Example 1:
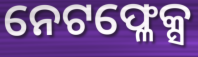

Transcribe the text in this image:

ନେଟଫ୍ଳେକ୍ସ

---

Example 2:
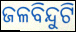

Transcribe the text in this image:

ଜଳବିନ୍ଦୁଟି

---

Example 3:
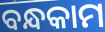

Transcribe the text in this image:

ବନ୍ଧକାମ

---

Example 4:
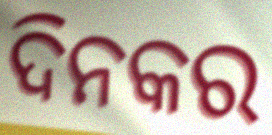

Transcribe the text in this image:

ଦିନକର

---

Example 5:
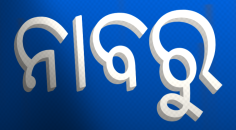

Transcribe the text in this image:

ନାବରୁ